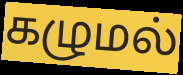
கழுமல்